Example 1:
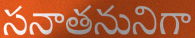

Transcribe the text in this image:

సనాతనునిగా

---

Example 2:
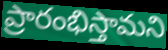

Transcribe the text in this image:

ప్రారంభిస్తామని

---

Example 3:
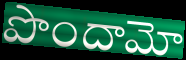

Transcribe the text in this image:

పొందామో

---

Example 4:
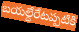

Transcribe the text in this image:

బయల్దేరేటప్పటికి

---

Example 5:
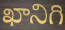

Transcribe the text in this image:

ఖానిగి